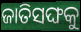
ଜାତିସଙ୍ଘକୁ